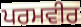
ਪਰਮਵੀਰ